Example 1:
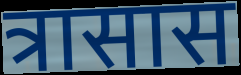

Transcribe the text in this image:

त्रासास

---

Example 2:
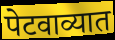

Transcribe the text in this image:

पेटवाव्यात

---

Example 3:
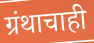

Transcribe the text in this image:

ग्रंथाचाही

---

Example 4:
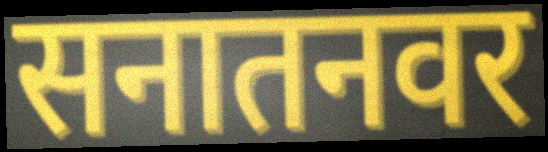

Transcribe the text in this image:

सनातनवर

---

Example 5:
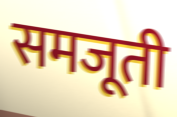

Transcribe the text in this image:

समजूती